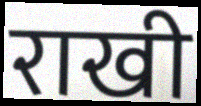
राखी